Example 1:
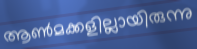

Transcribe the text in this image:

ആൺമക്കളില്ലായിരുന്നു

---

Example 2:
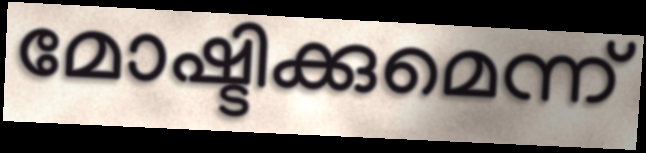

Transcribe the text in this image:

മോഷ്ടിക്കുമെന്ന്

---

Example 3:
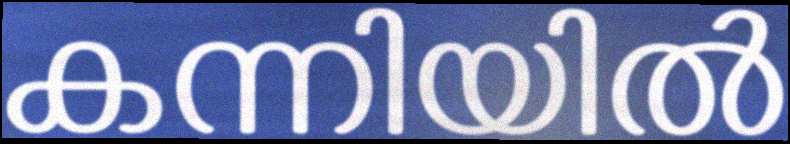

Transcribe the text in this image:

കന്നിയിൽ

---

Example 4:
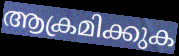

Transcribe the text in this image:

ആക്രമിക്കുക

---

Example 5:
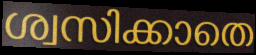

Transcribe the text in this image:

ശ്വസിക്കാതെ